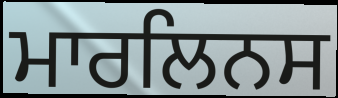
ਮਾਰਲਿਨਸ